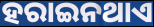
ହରାଇନଥାଏ